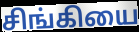
சிங்கியை